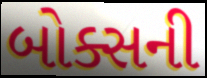
બોક્સની